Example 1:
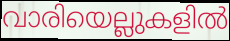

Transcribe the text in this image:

വാരിയെല്ലുകളിൽ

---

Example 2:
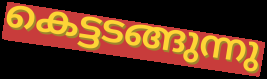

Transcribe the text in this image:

കെട്ടടങ്ങുന്നു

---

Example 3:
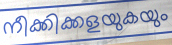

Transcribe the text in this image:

നീക്കിക്കളയുകയും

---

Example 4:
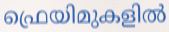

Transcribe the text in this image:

ഫ്രെയിമുകളിൽ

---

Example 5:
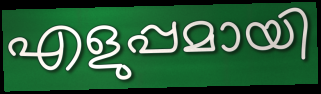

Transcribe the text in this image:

എളുപ്പമായി